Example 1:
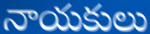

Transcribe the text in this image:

నాయకులు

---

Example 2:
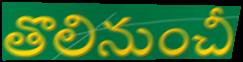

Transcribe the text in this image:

తొలినుంచీ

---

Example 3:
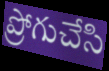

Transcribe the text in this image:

ప్రోగుచేసి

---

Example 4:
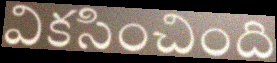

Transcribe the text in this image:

వికసించింది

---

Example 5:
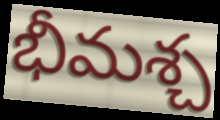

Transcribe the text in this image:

భీమశ్చ